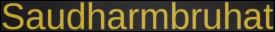
Saudharmbruhat